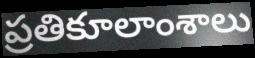
ప్రతికూలాంశాలు